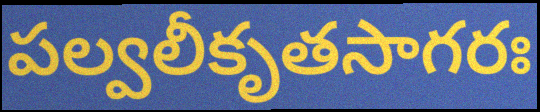
పల్వలీకృతసాగరః